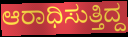
ಆರಾಧಿಸುತ್ತಿದ್ದ